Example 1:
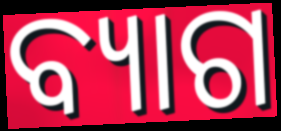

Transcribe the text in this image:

ବ୍ୟାଗ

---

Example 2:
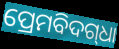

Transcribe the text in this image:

ପ୍ରେମବିଦଗ୍‍ଧା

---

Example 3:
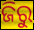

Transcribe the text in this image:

ଜିରୁ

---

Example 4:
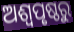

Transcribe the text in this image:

ଅଶ୍ଵପୃଷ୍ଠରୁ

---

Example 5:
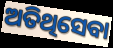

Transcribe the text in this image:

ଅତିଥିସେବା